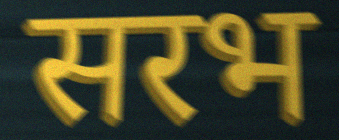
सरभ